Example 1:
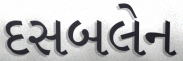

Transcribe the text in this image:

દસબલેન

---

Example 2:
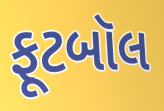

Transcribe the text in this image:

ફૂટબૉલ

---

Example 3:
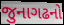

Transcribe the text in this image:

જુનાગઢનો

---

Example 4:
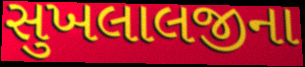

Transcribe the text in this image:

સુખલાલજીના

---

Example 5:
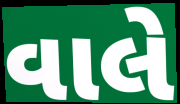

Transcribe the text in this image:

વાલે